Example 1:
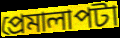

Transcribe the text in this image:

প্রেমালাপটা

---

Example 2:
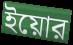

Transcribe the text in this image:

ইয়োর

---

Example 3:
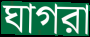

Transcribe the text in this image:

ঘাগরা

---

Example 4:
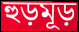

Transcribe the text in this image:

হুড়মূড়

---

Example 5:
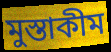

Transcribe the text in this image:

মুস্তাকীম